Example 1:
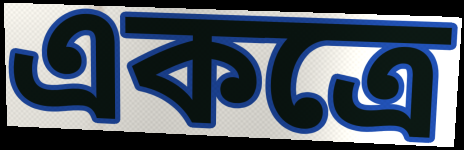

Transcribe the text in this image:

একত্ৰে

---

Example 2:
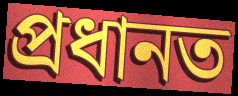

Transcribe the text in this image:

প্ৰধানত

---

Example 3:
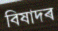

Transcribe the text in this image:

বিষাদৰ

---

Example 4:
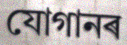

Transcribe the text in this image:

যোগানৰ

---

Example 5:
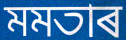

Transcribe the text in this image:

মমতাৰ